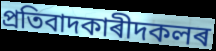
প্ৰতিবাদকাৰীদকলৰ